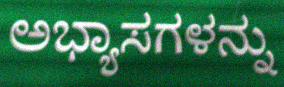
ಅಭ್ಯಾಸಗಳನ್ನು